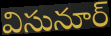
విసునూర్